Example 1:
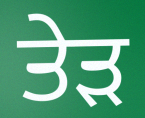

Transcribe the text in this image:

ਤੇੜ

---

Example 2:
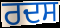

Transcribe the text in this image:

ਰਦਸ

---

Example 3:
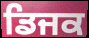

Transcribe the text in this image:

ਡਿਜਕ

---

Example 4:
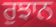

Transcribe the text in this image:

ਰੁਝਾਨ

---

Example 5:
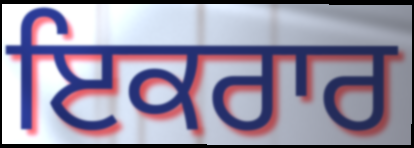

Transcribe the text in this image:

ਇਕਰਾਰ